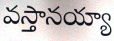
వస్తానయ్యా